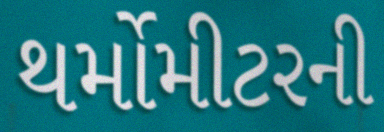
થર્મોમીટરની